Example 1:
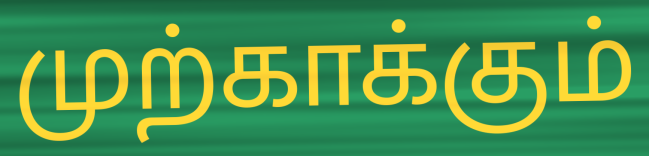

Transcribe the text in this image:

முற்காக்கும்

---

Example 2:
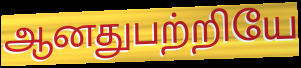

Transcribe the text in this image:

ஆனதுபற்றியே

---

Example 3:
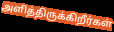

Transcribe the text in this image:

அளித்திருக்கிறீர்கள்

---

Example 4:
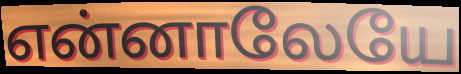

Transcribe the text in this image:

என்னாலேயே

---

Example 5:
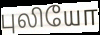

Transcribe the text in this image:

புலியோ